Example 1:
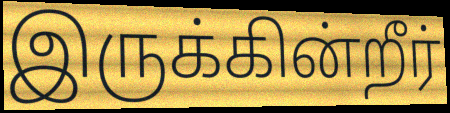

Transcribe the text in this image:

இருக்கின்றீர்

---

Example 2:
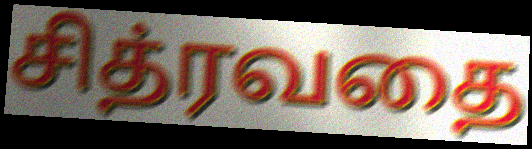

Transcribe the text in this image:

சித்ரவதை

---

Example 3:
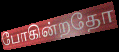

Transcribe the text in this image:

போகின்றதோ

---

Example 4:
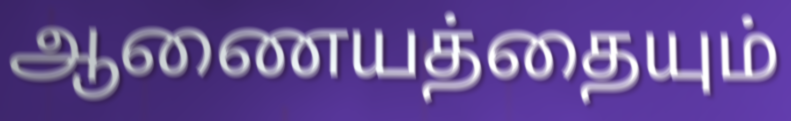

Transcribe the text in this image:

ஆணையத்தையும்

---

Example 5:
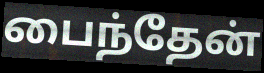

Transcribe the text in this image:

பைந்தேன்